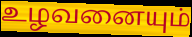
உழவனையும்